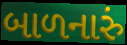
બાળનારું